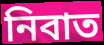
নিবাত